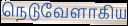
நெடுவேளாகிய